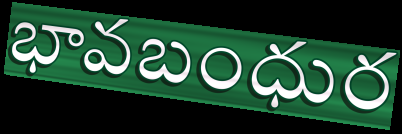
భావబంధుర